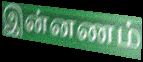
இன்னணம்